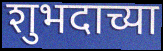
शुभदाच्या